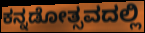
ಕನ್ನಡೋತ್ಸವದಲ್ಲಿ